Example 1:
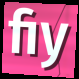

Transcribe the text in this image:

fiy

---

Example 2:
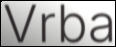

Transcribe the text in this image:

Vrba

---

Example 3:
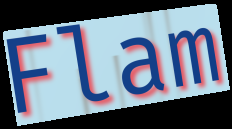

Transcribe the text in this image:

Flam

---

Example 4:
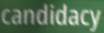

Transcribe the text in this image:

candidacy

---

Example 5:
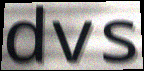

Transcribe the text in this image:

dvs